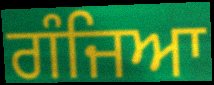
ਗੰਜਿਆ